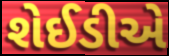
શેઈડીએ